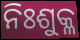
ନିଃଶୁକ୍ଳ